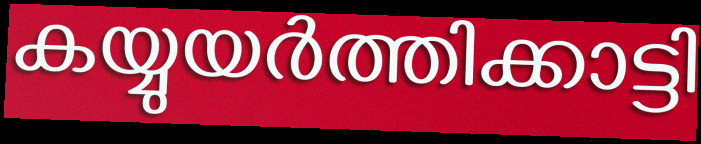
കയ്യുയർത്തിക്കാട്ടി